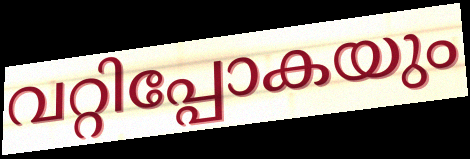
വറ്റിപ്പോകയും